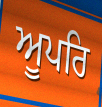
ਅੂਪਰਿ